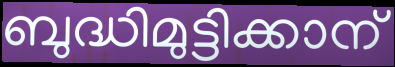
ബുദ്ധിമുട്ടിക്കാന്